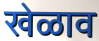
खेळाव